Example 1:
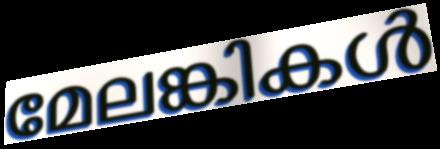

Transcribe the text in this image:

മേലങ്കികൾ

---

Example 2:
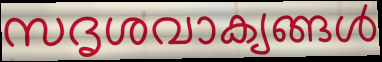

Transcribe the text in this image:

സദൃശവാക്യങ്ങൾ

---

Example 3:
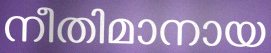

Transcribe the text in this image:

നീതിമാനായ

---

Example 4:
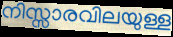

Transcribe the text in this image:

നിസ്സാരവിലയുള്ള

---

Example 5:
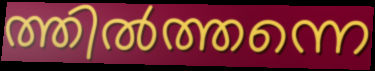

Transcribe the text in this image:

ത്തിൽത്തന്നെ